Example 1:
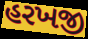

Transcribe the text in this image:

હરખજી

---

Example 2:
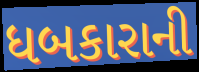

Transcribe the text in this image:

ધબકારાની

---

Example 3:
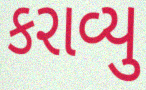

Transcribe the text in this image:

કરાવ્યુ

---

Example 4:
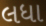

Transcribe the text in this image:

લધા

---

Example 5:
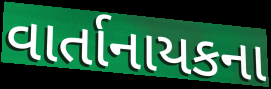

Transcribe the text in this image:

વાર્તાનાયકના